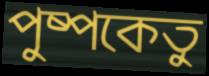
পুষ্পকেতু